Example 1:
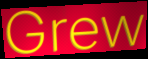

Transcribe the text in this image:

Grew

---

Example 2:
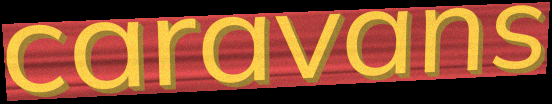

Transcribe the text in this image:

caravans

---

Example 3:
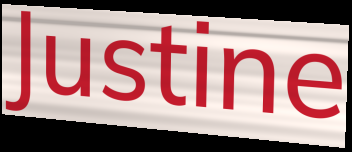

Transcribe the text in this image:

Justine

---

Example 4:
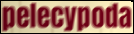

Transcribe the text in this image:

pelecypoda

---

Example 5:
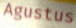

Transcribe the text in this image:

Agustus